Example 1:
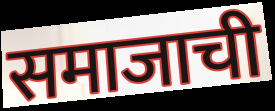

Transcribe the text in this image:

समाजाची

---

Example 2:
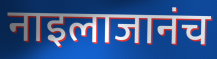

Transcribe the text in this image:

नाइलाजानंच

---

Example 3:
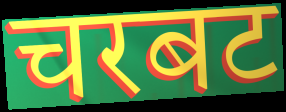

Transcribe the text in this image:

चरबट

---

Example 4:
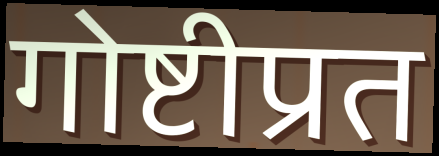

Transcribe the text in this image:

गोष्टीप्रत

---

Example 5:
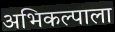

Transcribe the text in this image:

अभिकल्पाला